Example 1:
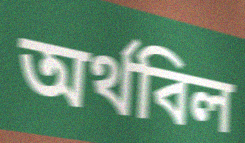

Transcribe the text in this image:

অর্থবিল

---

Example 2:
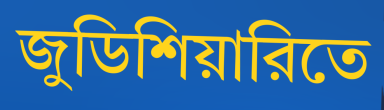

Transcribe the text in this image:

জুডিশিয়ারিতে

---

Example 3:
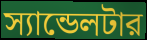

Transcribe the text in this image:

স্যান্ডেলটার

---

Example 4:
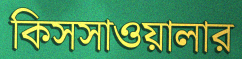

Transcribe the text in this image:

কিসসাওয়ালার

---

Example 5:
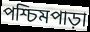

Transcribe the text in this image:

পশ্চিমপাড়া